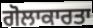
ਗੋਲਾਕਾਰਤਾ